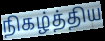
நிகழ்த்திய